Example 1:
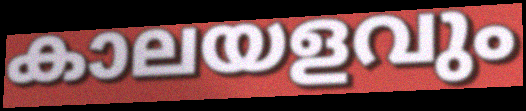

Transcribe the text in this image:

കാലയളവും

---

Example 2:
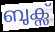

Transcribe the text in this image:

ബുക്സ്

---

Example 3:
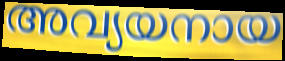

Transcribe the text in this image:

അവ്യയനായ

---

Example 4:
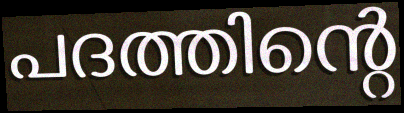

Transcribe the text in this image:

പദത്തിന്റെ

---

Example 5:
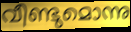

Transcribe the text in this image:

വീണ്ടുമൊന്നു